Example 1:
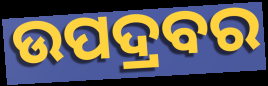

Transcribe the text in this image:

ଉପଦ୍ରବର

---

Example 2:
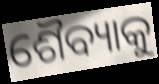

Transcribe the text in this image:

ଶୈବ୍ୟାକୁ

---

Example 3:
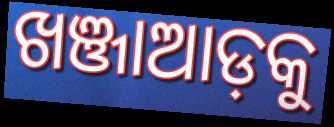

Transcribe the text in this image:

ଖଞ୍ଜାଆଡ଼କୁ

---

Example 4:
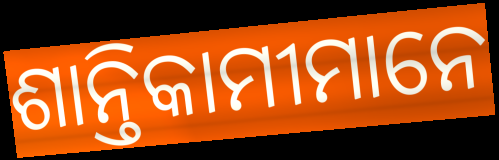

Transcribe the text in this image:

ଶାନ୍ତିକାମୀମାନେ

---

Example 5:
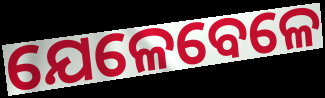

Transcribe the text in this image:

ଯେଳେବେଳେ